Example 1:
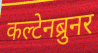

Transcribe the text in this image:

कल्टेनब्रुनर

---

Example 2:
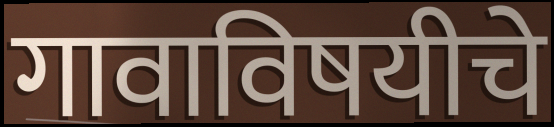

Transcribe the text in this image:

गावाविषयीचे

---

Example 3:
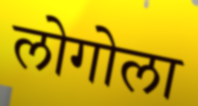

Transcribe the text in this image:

लोगोला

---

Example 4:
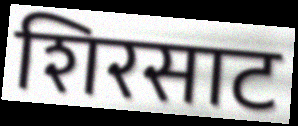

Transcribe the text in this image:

शिरसाट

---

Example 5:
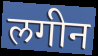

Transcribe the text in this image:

लगीन